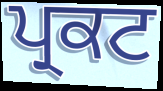
ਪ੍ਰਕਟ